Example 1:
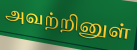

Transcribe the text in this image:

அவற்றினுள்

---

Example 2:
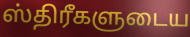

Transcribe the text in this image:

ஸ்திரீகளுடைய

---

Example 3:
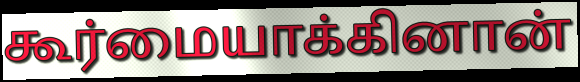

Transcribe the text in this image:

கூர்மையாக்கினான்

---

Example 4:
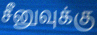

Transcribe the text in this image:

சீனுவுக்கு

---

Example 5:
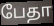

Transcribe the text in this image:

பேதா